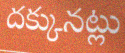
దక్కునట్లు